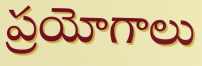
ప్రయోగాలు